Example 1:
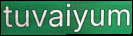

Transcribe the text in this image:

tuvaiyum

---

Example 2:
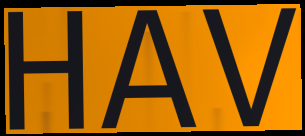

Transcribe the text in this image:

HAV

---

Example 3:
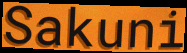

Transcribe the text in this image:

Sakuni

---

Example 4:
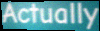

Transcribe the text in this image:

Actually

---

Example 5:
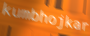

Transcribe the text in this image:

kumbhojkar